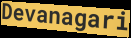
Devanagari